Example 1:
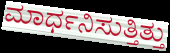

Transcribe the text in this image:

ಮಾರ್ಧನಿಸುತ್ತಿತ್ತು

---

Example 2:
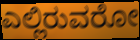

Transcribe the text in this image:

ಎಲ್ಲಿರುವರೋ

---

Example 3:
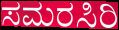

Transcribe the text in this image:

ಸಮರಸಿರಿ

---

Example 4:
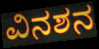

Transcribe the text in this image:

ವಿನಶನ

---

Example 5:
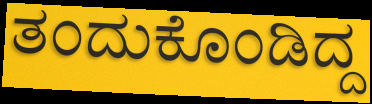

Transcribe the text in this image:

ತಂದುಕೊಂಡಿದ್ದ